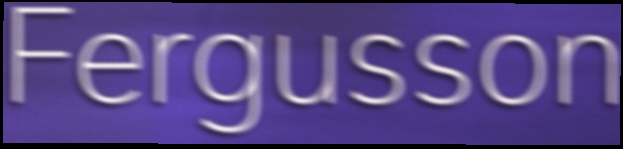
Fergusson